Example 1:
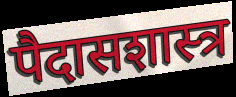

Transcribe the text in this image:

पैदासशास्त्र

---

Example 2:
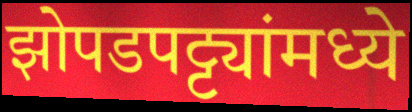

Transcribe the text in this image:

झोपडपट्ट्यांमध्ये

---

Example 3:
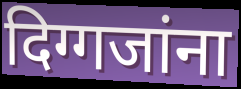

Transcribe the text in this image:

दिग्गजांना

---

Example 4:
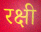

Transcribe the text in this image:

रक्षी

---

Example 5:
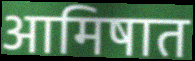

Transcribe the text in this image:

आमिषात